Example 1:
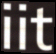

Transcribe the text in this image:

iit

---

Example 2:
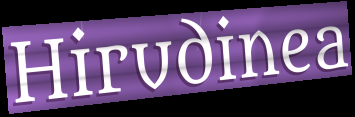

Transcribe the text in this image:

Hirudinea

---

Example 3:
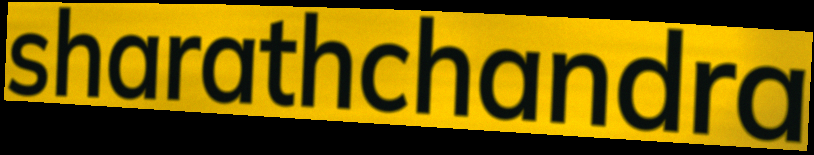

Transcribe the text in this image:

sharathchandra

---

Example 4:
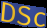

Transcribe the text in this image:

DSc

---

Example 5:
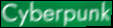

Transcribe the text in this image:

Cyberpunk